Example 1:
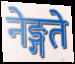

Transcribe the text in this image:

नेङ्गते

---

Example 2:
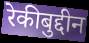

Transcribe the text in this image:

रेकीबुद्दीन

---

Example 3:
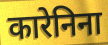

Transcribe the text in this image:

कारेनिना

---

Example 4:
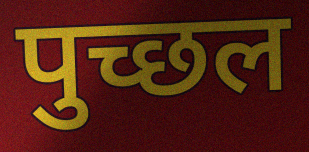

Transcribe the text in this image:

पुच्छल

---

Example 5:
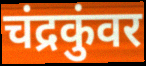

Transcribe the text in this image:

चंद्रकुंवर